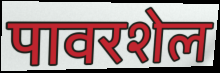
पावरशेल